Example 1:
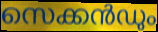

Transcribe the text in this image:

സെക്കൻഡും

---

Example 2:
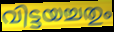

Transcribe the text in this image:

വിട്ടയച്ചതും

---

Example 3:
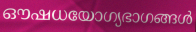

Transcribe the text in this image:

ഔഷധയോഗ്യഭാഗങ്ങൾ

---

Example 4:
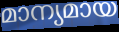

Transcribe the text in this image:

മാന്യമായ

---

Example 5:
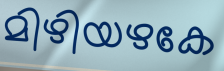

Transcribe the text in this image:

മിഴിയഴകേ